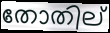
തോതില്